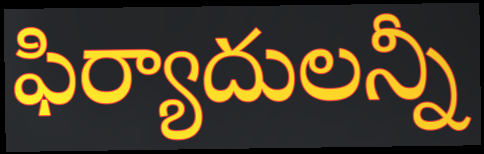
ఫిర్యాదులన్నీ